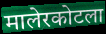
मालेरकोटला